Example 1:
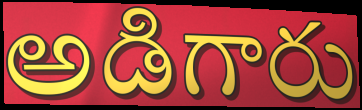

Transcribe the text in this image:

అడిగారు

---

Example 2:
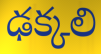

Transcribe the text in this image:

ఢక్కలి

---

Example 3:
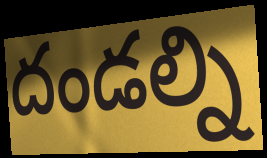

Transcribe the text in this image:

దండల్ని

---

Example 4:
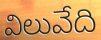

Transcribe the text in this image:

విలువేది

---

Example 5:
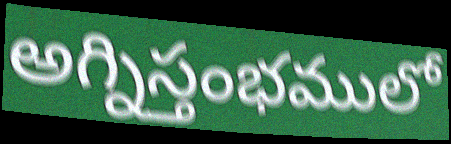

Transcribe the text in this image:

అగ్నిస్తంభములో